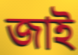
জাই